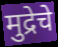
मुद्रेचे